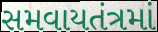
સમવાયતંત્રમાં